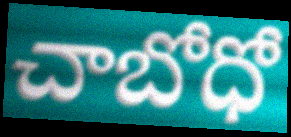
చాబోధో